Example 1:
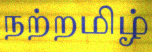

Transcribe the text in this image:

நற்றமிழ்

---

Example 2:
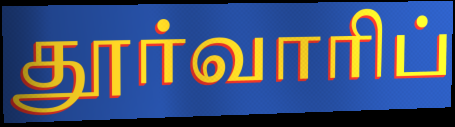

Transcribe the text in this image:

தூர்வாரிப்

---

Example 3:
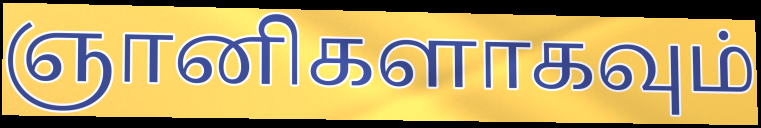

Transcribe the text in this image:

ஞானிகளாகவும்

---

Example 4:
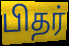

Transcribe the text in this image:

பிதர்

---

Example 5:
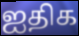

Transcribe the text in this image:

ஐதிக